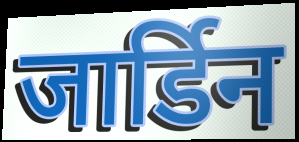
जार्डिन